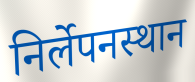
निर्लेपनस्थान